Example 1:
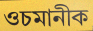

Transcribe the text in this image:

ওচমানীক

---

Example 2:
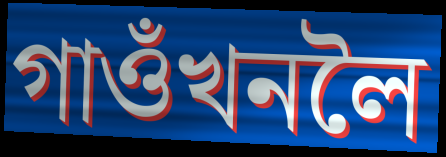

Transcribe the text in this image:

গাওঁখনলৈ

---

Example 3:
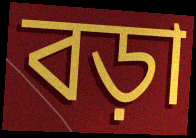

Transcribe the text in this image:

বড়া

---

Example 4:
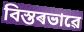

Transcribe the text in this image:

বিস্তৰভাৱে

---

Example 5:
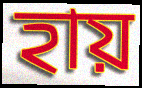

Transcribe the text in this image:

হায়